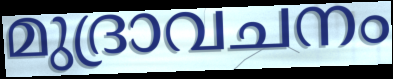
മുദ്രാവചനം